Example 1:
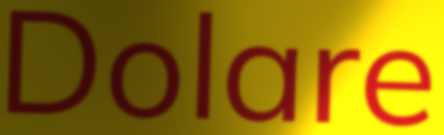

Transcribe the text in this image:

Dolare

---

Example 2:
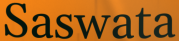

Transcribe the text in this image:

Saswata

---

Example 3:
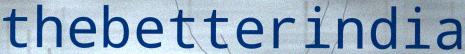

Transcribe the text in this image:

thebetterindia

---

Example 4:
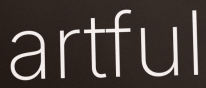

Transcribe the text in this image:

artful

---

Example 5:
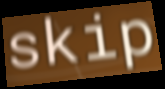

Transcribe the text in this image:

skip